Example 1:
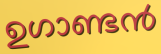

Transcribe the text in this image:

ഉഗാണ്ടൻ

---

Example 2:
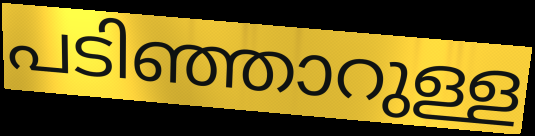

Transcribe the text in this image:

പടിഞ്ഞാറുള്ള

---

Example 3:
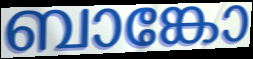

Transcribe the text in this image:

ബാങ്കോ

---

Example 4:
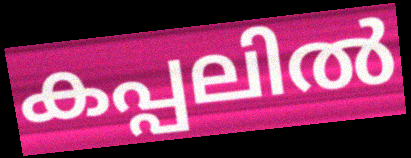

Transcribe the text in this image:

കപ്പലിൽ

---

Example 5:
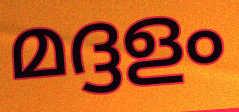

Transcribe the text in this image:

മദ്ദളം